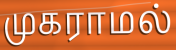
முகராமல்